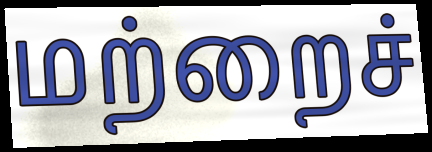
மற்றைச்